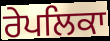
ਰੇਪਲਿਕਾ